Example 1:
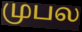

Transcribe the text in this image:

முபல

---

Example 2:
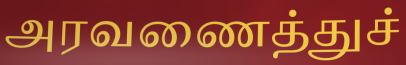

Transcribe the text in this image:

அரவணைத்துச்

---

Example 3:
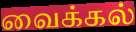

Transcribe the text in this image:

வைக்கல்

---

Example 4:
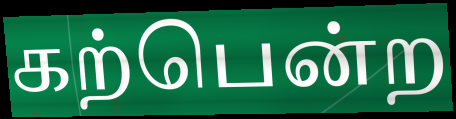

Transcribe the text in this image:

கற்பென்ற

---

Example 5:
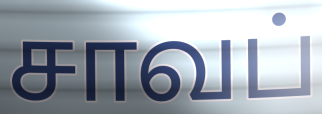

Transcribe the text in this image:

சாவப்